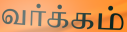
வர்க்கம்